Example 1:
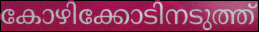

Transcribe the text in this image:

കോഴിക്കോടിനടുത്ത്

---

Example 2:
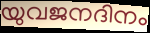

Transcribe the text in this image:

യുവജനദിനം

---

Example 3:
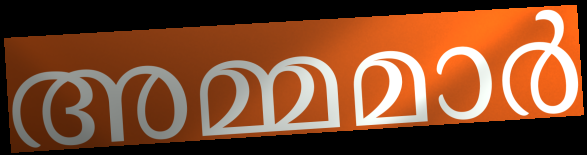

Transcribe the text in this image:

അമ്മമാർ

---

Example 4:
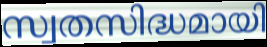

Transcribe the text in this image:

സ്വതസിദ്ധമായി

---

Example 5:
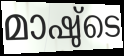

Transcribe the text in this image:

മാഷു്ടെ